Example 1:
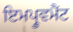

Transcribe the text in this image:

ਇਮਪ੍ਰੂਵਮੈਂਟ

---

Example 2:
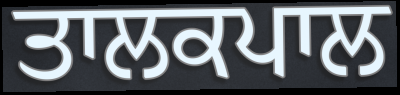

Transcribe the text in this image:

ਤਾਲਕਪਾਲ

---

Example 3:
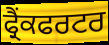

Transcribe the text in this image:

ਫ੍ਰੈਂਕਫਰਟਰ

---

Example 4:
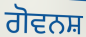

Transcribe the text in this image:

ਗੋਵਨਸ਼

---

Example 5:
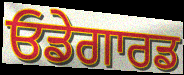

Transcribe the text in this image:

ਓਡੇਗਾਰਡ